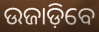
ଉଜାଡ଼ିବେ